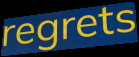
regrets